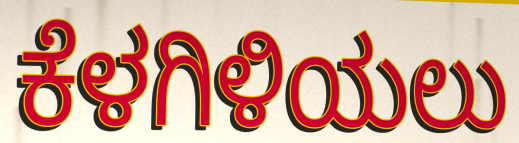
ಕೆಳಗಿಳಿಯಲು